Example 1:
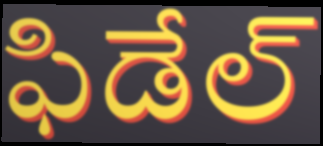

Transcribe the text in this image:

ఫిడేల్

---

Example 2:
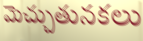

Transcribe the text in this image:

మెచ్చుతునకలు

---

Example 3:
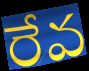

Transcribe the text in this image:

రేవ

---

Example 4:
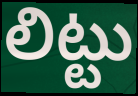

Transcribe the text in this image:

లిట్టు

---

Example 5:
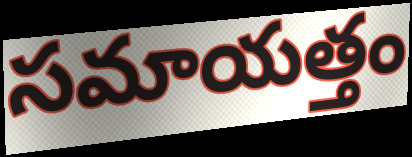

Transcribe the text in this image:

సమాయత్తం